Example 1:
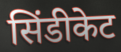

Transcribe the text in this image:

सिंडीकेट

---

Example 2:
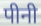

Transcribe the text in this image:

पीनी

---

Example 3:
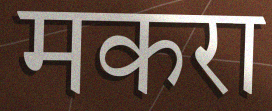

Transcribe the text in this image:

मकरा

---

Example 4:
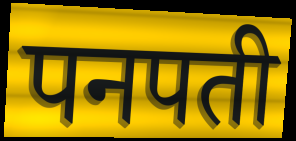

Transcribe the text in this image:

पनपती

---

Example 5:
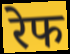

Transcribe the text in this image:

रेफ